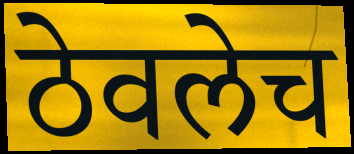
ठेवलेच